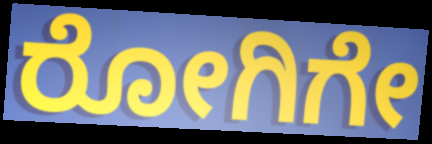
ರೋಗಿಗೇ